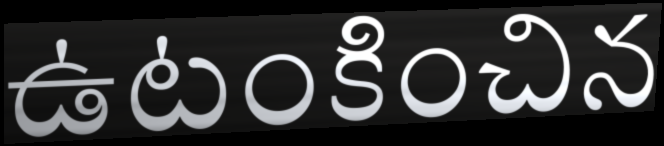
ఉటంకించిన